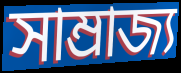
সাম্ৰাজ্য